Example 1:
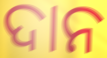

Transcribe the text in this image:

ଦାନ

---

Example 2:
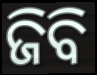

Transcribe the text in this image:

ଜିବି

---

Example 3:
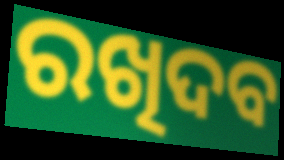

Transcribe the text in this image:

ରଖିଦବ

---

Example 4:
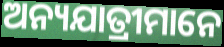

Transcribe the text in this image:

ଅନ୍ୟଯାତ୍ରୀମାନେ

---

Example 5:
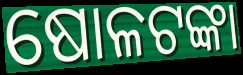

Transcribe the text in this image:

ଷୋଳଟଙ୍କା